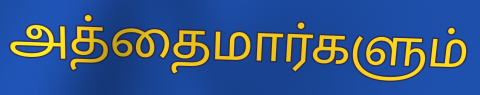
அத்தைமார்களும்